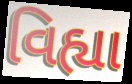
વિહ્યા